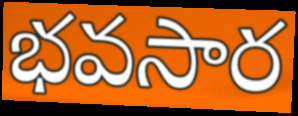
భవసార